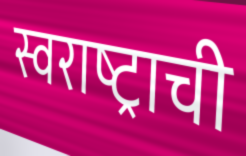
स्वराष्ट्राची